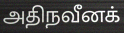
அதிநவீனக்